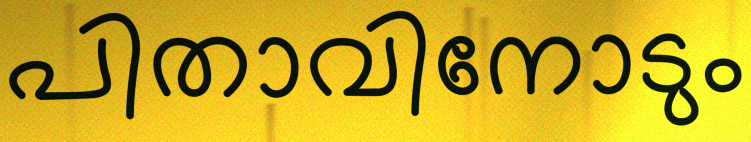
പിതാവിനോടും